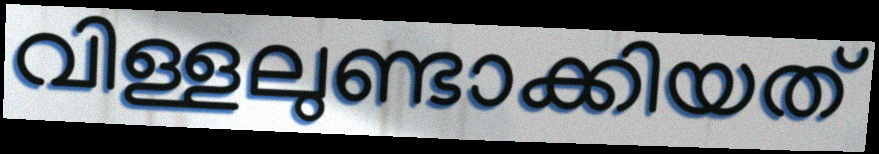
വിള്ളലുണ്ടാക്കിയത്